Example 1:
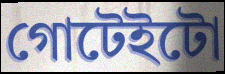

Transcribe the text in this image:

গোটেইটো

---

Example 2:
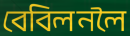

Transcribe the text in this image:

বেবিলনলৈ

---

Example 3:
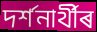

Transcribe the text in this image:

দৰ্শনাৰ্থীৰ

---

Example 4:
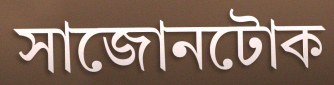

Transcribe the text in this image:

সাজোনটোক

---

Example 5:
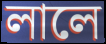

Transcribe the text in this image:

লালে